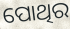
ପୋଥିର